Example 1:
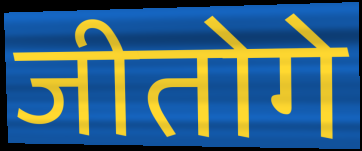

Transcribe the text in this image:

जीतोगे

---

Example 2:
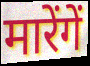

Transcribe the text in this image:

मारेंगें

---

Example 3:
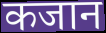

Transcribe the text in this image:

कजान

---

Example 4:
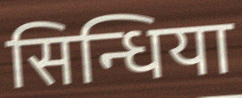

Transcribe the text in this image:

सिन्धिया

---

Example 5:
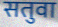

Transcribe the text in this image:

सतुवा